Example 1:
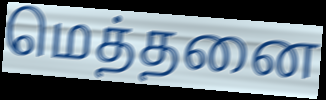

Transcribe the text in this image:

மெத்தனை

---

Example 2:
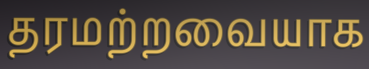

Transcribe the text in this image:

தரமற்றவையாக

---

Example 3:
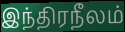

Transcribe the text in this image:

இந்திரநீலம்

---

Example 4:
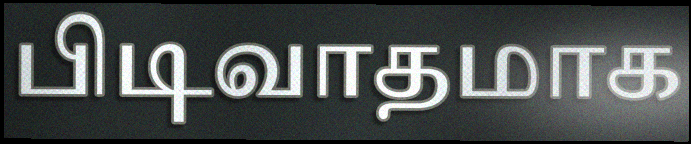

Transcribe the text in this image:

பிடிவாதமாக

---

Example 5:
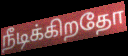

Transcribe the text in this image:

நீடிக்கிறதோ